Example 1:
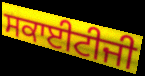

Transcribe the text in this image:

ਸਕਾਈਟੀਜੀ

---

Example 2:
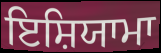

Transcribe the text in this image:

ਇਸ਼ਿਯਾਮਾ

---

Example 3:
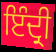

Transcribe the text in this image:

ਇੰਦ੍ਰੀ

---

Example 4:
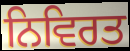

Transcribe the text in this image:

ਨਿਵਿਰਤ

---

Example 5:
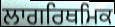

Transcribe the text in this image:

ਲਾਗਰਿਥਮਿਕ